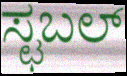
ಸ್ಟಬಲ್